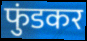
फुंडकर